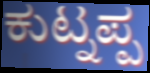
ಕುಟ್ನಪ್ಪ